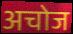
अचोज